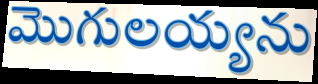
మొగులయ్యను